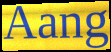
Aang